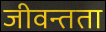
जीवन्तता